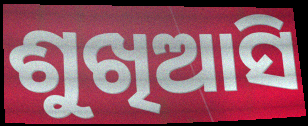
ଶୁଖିଆସି